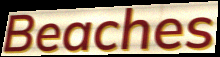
Beaches